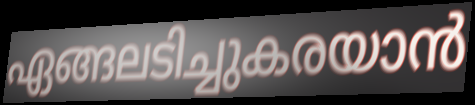
ഏങ്ങലടിച്ചുകരയാൻ